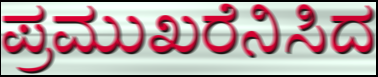
ಪ್ರಮುಖರೆನಿಸಿದ